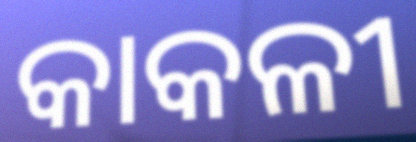
କାକଳୀ